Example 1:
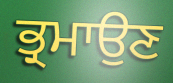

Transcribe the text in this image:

ਭ੍ਰਮਾਉਣ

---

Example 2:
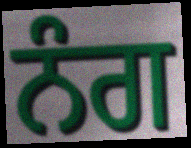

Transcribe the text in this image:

ਨੰਗ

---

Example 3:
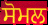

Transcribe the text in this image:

ਸੋਮਲ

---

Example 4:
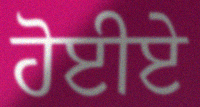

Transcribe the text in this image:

ਹੋਈਏ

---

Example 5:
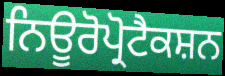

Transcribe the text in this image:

ਨਿਊਰੋਪ੍ਰੋਟੈਕਸ਼ਨ